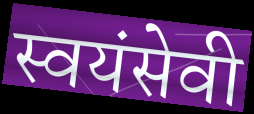
स्वयंसेवी